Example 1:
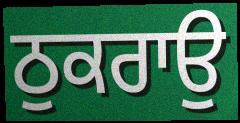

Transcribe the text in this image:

ਠੁਕਰਾਉ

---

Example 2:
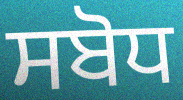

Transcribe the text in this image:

ਸਬੋਧ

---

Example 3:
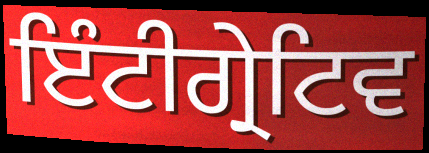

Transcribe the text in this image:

ਇੰਟੀਗ੍ਰੇਟਿਵ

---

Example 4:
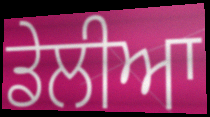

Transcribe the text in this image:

ਡੇਲੀਆ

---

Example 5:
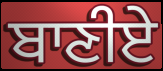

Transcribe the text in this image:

ਬਾਣੀਏ